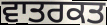
ਵਾਤਰਕਤ